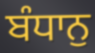
ਬੰਧਾਨੁ